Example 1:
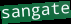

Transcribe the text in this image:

sangate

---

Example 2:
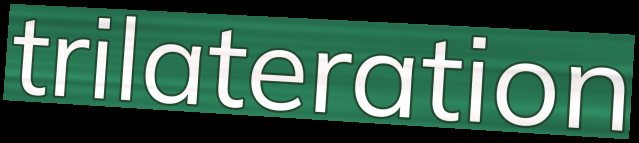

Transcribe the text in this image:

trilateration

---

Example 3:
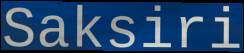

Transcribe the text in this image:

Saksiri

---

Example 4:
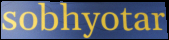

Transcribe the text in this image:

sobhyotar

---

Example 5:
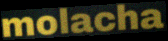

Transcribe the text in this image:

molacha